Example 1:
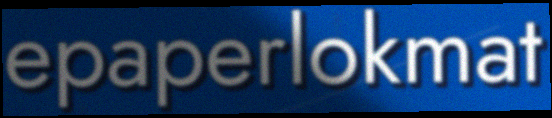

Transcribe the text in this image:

epaperlokmat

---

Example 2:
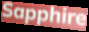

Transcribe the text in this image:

Sapphire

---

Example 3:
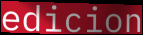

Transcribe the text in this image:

edicion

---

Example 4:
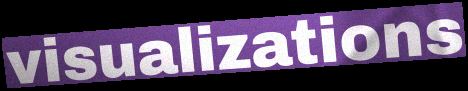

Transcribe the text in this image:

visualizations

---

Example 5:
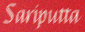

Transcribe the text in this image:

Sariputta